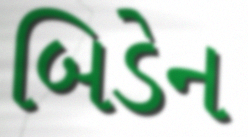
બિડેન